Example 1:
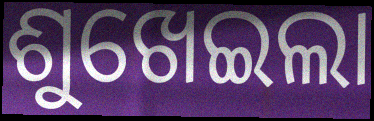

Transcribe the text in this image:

ଶୁଖେଇଲା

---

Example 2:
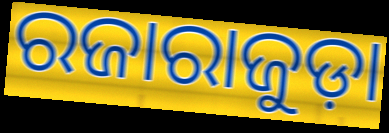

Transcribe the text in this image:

ରଜାରାଜୁଡ଼ା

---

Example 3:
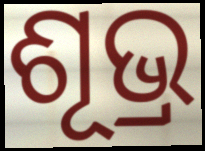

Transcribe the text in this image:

ଶୂଭ୍ର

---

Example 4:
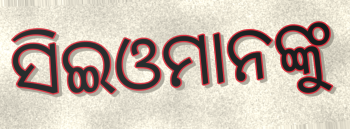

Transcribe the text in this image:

ସିଇଓମାନଙ୍କୁ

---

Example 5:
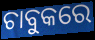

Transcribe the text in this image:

ଚାବୁକରେ